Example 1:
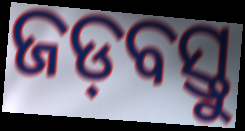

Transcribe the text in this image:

ଜଡ଼ବସ୍ତୁ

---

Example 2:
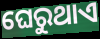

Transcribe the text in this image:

ଘେରୁଥାଏ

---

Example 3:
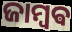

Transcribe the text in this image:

ଜାମ୍ବଵ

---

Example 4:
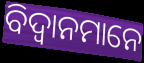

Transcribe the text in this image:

ବିଦ୍ଵାନମାନେ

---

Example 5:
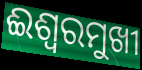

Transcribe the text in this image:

ଈଶ୍ୱରମୁଖୀ